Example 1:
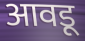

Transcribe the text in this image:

आवडू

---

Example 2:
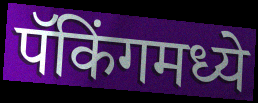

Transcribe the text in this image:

पॅकिंगमध्ये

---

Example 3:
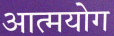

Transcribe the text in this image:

आत्मयोग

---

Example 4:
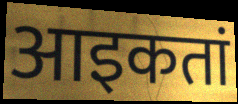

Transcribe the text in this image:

आइकतां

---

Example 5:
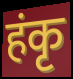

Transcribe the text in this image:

हंकृ